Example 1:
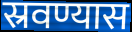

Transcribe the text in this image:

स्रवण्यास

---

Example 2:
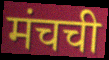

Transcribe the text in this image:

मंचची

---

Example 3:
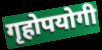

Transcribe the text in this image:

गृहोपयोगी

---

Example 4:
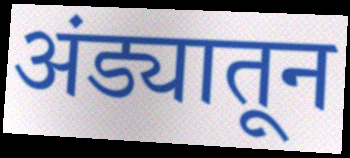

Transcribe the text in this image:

अंड्यातून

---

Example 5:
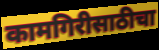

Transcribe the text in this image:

कामगिरीसाठीचा